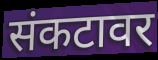
संकटावर